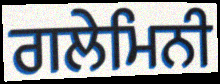
ਗਲੇਮਿਨੀ